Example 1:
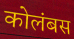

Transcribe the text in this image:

कोलंबस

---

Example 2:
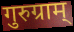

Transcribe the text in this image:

गुरुग्राम्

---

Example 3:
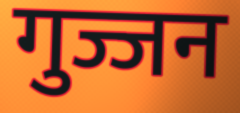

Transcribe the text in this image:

गुज्जन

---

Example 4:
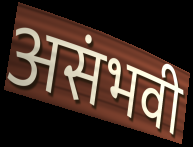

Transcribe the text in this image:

असंभवी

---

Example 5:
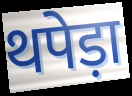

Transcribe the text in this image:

थपेड़ा